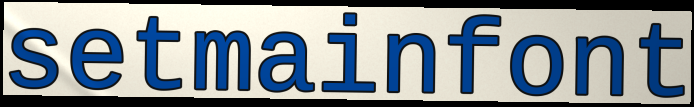
setmainfont